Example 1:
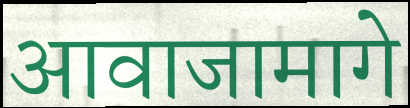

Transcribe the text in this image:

आवाजामागे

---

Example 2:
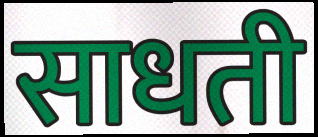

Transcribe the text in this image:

साधती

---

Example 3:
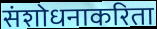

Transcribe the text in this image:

संशोधनाकरिता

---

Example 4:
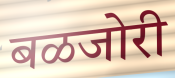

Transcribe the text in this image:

बळजोरी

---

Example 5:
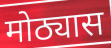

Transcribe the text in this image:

मोठ्यास